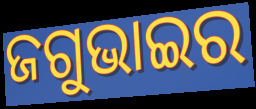
ଜଗୁଭାଇର